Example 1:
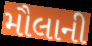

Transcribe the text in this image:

મૌલાની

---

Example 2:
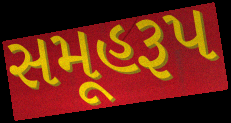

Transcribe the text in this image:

સમૂહરૂપ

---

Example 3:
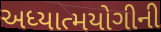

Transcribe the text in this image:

અધ્યાત્મયોગીની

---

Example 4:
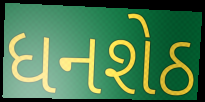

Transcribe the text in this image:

ધનશેઠ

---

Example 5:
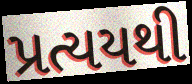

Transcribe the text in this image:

પ્રત્યયથી